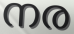
നര